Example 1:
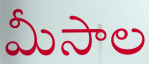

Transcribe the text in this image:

మీసాల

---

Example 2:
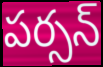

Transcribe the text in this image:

పర్సన్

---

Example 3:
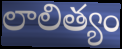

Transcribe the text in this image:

లాలిత్యం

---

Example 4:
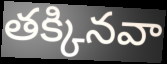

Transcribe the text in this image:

తక్కినవా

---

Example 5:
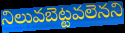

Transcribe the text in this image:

నిలువబెట్టవలెనని